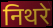
निथरे